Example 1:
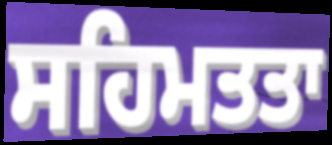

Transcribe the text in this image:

ਸਹਿਮਤਤਾ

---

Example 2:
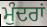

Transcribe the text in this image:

ਮੁੰਦਰਾਂ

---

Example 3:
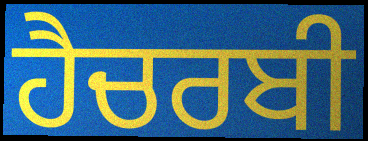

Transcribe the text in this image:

ਹੈਚਰਬੀ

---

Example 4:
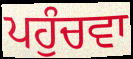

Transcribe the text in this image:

ਪਹੁੰਚਵਾ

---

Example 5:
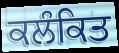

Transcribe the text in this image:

ਕਲੰਕਿਤ